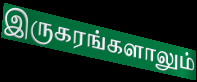
இருகரங்களாலும்